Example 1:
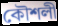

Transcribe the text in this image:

কৌশলী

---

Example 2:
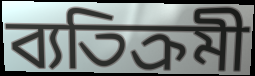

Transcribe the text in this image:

ব্যতিক্ৰমী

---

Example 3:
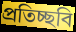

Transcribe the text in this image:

প্ৰতিচ্ছবি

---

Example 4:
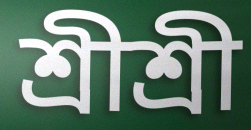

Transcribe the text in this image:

শ্ৰীশ্ৰী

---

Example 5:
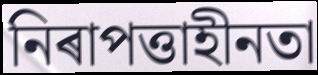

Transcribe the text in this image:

নিৰাপত্তাহীনতা